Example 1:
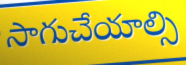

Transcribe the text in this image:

సాగుచేయాల్సి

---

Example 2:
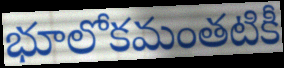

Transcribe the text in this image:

భూలోకమంతటికీ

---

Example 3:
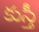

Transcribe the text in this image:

కుస్తీ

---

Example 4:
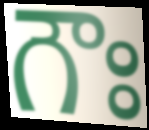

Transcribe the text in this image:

గౌః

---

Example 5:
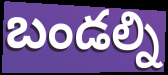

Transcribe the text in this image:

బండల్ని